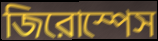
জিরোস্পেস